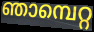
ഞാമ്പെറ്റ